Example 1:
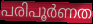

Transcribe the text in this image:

പരിപൂർണത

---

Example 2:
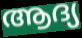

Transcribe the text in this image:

ആദ്യ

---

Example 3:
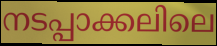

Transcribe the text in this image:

നടപ്പാക്കലിലെ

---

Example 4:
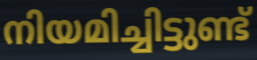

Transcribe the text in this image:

നിയമിച്ചിട്ടുണ്ട്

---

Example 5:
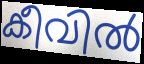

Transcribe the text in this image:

കീവിൽ